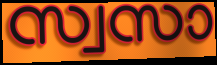
സ്വസാ